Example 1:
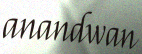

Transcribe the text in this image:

anandwan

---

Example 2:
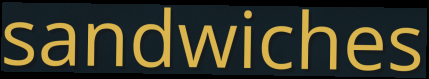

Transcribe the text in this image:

sandwiches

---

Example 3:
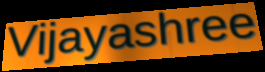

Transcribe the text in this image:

Vijayashree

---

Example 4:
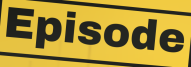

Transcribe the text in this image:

Episode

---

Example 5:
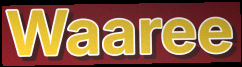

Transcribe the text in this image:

Waaree